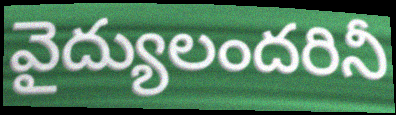
వైద్యులందరినీ